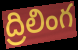
ద్రిలింగ